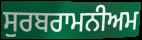
ਸੁਰਬਰਾਮਨੀਅਮ